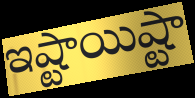
ఇష్టాయిష్టా